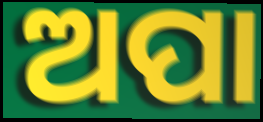
ଅପା